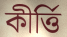
কীর্ত্তি